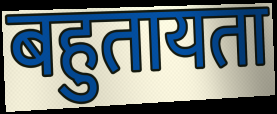
बहुतायता